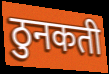
ठुनकती